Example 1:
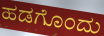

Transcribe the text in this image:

ಹಡಗೊಂದು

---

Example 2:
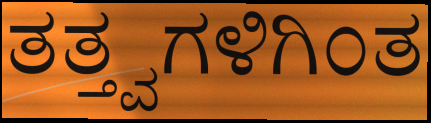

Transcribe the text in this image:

ತತ್ತ್ವಗಳಿಗಿಂತ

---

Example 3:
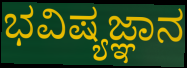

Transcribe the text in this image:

ಭವಿಷ್ಯಜ್ಞಾನ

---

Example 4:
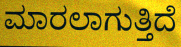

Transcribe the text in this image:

ಮಾರಲಾಗುತ್ತಿದೆ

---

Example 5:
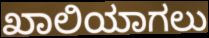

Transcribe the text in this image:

ಖಾಲಿಯಾಗಲು